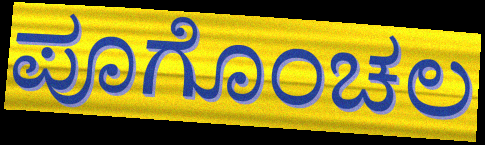
ಪೂಗೊಂಚಲ